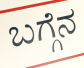
ಬಗ್ಗೆನ